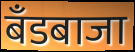
बँडबाजा